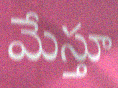
మేస్తూ